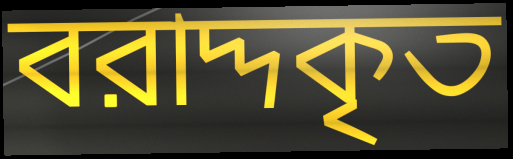
বরাদ্দকৃত